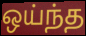
ஒய்ந்த